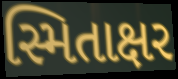
સ્મિતાક્ષર